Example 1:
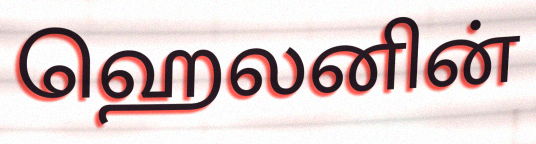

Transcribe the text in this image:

ஹெலனின்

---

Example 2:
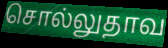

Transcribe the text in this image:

சொல்லுதாவ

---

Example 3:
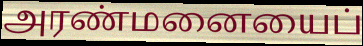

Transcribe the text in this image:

அரண்மனையைப்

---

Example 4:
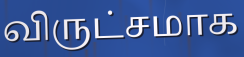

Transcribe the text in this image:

விருட்சமாக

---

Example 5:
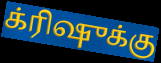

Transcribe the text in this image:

க்ரிஷுக்கு